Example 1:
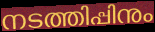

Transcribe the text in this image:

നടത്തിപ്പിനും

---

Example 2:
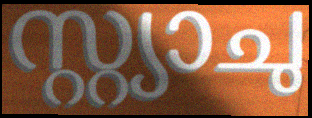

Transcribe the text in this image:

സ്റ്റ്യാചു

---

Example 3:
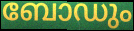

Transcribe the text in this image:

ബോഡും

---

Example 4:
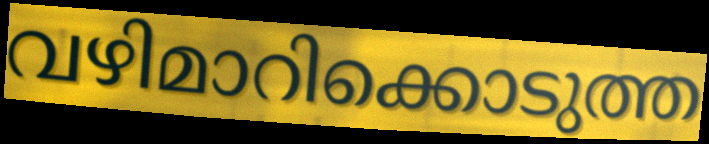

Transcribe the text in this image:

വഴിമാറിക്കൊടുത്ത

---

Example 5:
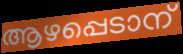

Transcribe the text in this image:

ആഴപ്പെടാന്